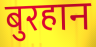
बुरहान